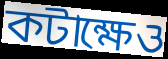
কটাক্ষেও